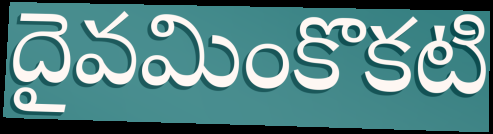
దైవమింకొకటి